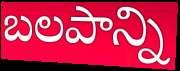
బలపాన్ని